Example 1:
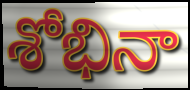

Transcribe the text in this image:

శోభినా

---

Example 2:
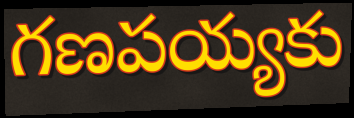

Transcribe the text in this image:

గణపయ్యకు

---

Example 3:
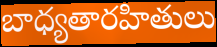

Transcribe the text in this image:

బాధ్యతారహితులు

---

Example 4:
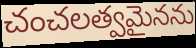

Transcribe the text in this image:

చంచలత్వమైనను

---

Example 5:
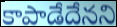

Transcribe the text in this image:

కాపాడేదేనని